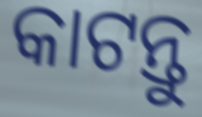
କାଟନ୍ତୁ